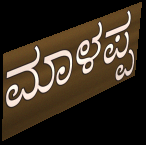
ಮಾಳಪ್ಪ